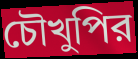
চৌখুপির